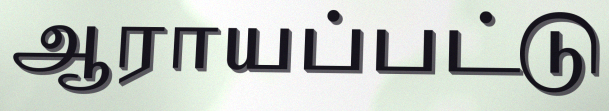
ஆராயப்பட்டு